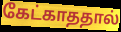
கேட்காததால்